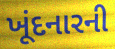
ખૂંદનારની